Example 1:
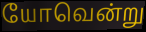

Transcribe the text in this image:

யோவென்று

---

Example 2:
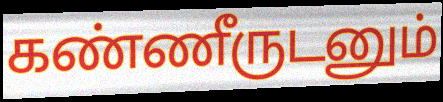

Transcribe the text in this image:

கண்ணீருடனும்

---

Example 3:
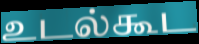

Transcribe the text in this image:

உடல்கூட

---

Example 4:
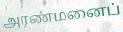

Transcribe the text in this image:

அரண்மனைப்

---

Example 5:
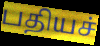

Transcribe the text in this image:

பதியச்